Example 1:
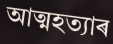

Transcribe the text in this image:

আত্মহত্যাৰ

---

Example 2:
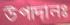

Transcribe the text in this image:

উপাদানঃ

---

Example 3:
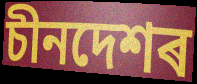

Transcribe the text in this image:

চীনদেশৰ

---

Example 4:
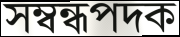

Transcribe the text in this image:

সম্বন্ধপদক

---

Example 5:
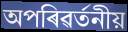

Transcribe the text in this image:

অপৰিৱৰ্তনীয়